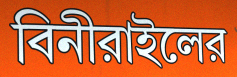
বিনীরাইলের